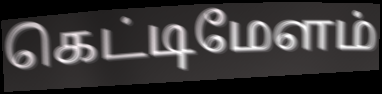
கெட்டிமேளம்